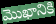
మొఖానికి